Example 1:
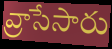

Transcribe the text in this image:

వ్రాసేసారు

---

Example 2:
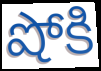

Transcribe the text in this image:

షోకి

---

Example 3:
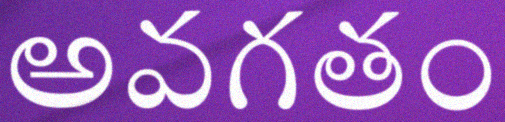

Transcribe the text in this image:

అవగతం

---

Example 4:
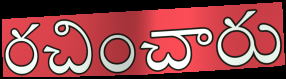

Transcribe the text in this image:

రచించారు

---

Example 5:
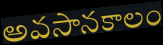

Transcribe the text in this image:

అవసానకాలం